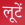
लूटें